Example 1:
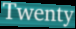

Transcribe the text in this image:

Twenty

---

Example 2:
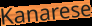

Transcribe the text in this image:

Kanarese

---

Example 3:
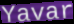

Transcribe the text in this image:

Yavar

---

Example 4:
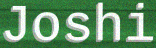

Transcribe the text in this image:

Joshi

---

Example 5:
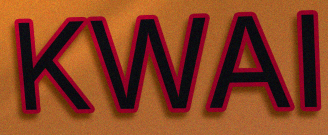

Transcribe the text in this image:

KWAI